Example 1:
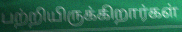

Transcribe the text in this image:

பற்றியிருக்கிறார்கள்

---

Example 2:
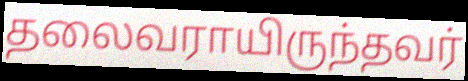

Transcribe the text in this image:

தலைவராயிருந்தவர்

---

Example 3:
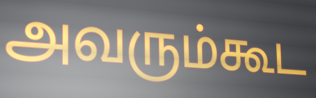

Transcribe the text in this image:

அவரும்கூட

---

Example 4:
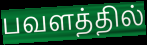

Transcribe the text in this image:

பவளத்தில்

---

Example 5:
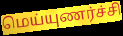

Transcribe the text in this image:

மெய்யுணர்ச்சி